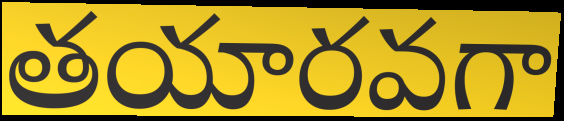
తయారవగా